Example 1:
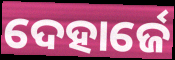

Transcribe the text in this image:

ଦେହାର୍ଜେ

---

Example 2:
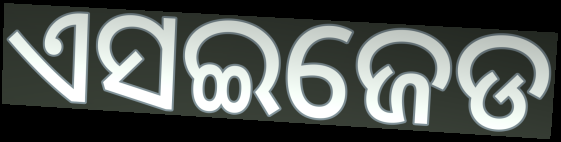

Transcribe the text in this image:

ଏସଇଜେଡ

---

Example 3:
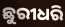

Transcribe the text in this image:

ଛୁରୀଧରି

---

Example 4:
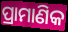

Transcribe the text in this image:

ପ୍ରାମାଣିକ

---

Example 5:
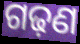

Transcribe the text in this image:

ଗଢ଼ଣ